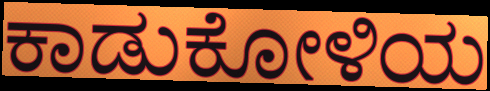
ಕಾಡುಕೋಳಿಯ